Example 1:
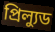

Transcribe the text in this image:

প্রিল্যুড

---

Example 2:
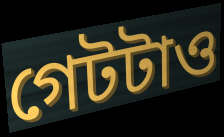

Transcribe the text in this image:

গেটটাও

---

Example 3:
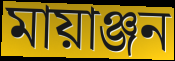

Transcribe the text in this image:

মায়াঞ্জন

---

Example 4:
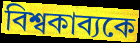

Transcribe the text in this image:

বিশ্বকাব্যকে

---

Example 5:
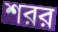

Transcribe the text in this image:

শরর